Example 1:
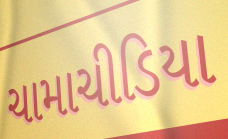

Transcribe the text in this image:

ચામાચીડિયા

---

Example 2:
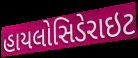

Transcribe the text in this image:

હાયલોસિડેરાઇટ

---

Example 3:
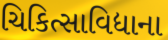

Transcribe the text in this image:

ચિકિત્સાવિદ્યાના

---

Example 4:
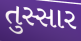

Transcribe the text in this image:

તુસ્સાર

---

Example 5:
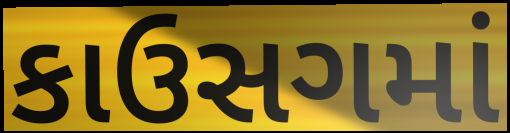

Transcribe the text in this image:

કાઉસગમાં